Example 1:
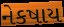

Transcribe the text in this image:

નેકષાય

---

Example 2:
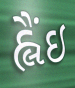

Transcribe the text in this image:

હ્લૈંઇ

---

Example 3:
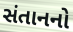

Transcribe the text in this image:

સંતાનનો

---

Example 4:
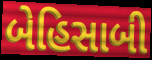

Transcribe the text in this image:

બેહિસાબી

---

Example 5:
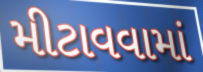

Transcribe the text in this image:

મીટાવવામાં